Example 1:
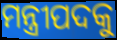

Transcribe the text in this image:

ମନ୍ତ୍ରୀପଦକୁ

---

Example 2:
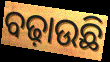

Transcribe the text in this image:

ବଢ଼ାଉଛି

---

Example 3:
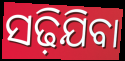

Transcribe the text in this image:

ସଢ଼ିଯିବା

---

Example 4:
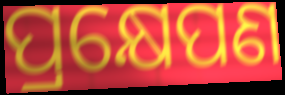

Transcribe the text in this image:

ପ୍ରକ୍ଷେପଣ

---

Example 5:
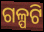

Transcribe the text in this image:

ଗଳ୍ପଟି